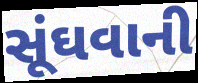
સૂંઘવાની